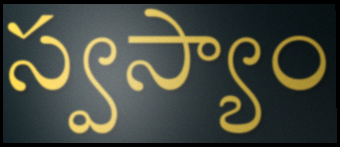
స్వస్యాం